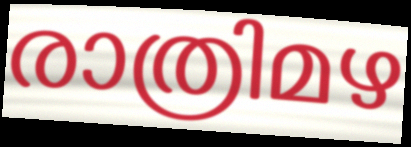
രാത്രിമഴ